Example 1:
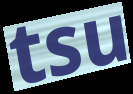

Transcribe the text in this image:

tsu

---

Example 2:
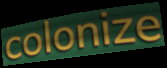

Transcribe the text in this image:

colonize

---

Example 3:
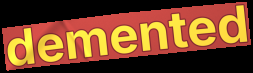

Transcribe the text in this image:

demented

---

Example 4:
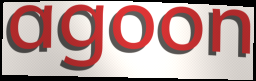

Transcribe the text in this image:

agoon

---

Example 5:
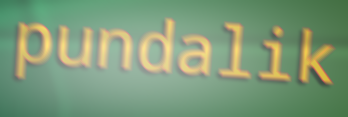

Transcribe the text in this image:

pundalik